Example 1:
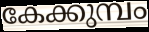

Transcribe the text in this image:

കേക്കുമ്പം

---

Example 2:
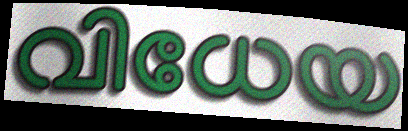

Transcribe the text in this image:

വിധേയ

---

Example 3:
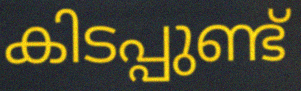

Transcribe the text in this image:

കിടപ്പുണ്ട്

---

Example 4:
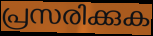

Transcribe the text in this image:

പ്രസരിക്കുക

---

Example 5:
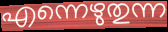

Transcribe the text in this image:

എന്നെഴുതുന്ന